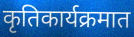
कृतिकार्यक्रमात